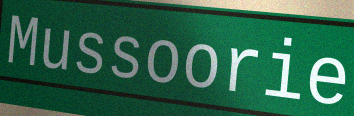
Mussoorie